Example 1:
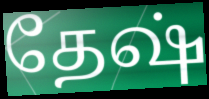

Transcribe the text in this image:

தேஷ்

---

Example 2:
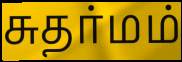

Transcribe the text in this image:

சுதர்மம்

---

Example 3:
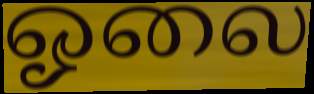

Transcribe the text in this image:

ஓலை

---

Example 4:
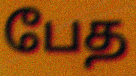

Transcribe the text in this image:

பேத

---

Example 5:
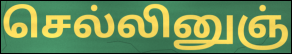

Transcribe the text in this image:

செல்லினுஞ்